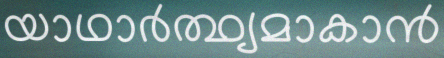
യാഥാർത്ഥ്യമാകാൻ